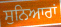
ਸੁਨਿਆਰਾਂ